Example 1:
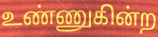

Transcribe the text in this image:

உண்ணுகின்ற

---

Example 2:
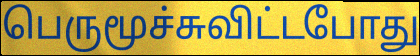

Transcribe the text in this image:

பெருமூச்சுவிட்டபோது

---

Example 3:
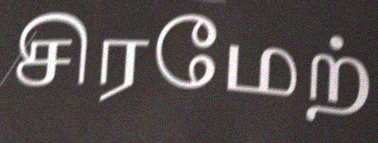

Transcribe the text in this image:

சிரமேற்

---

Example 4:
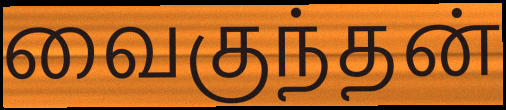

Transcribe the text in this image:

வைகுந்தன்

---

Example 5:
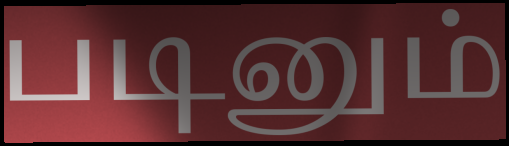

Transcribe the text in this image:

படினும்